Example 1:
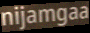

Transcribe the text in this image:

nijamgaa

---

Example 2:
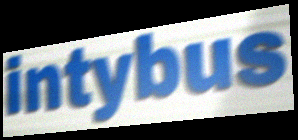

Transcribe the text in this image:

intybus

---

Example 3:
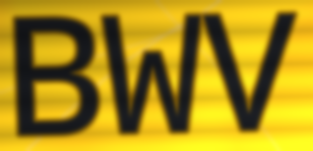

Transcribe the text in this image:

BWV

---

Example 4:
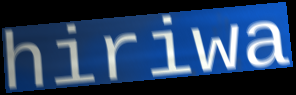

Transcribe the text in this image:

hiriwa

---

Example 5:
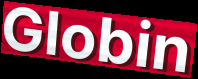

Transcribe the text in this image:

Globin